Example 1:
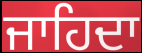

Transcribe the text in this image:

ਜਾਹਿਦਾ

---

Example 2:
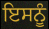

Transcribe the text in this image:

ਇਸਨੂੰ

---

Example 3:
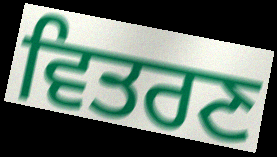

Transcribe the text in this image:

ਵਿਤਰਣ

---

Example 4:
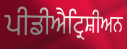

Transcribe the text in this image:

ਪੀਡੀਐਟ੍ਰਿਸ਼ੀਅਨ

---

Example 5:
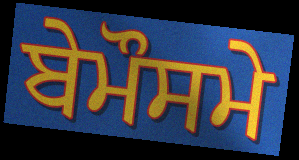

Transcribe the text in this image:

ਬੇਮੌਸਮੇ